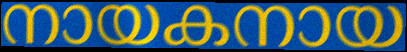
നായകനായ